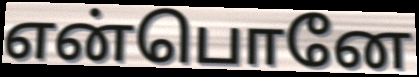
என்பொனே